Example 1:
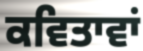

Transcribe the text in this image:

ਕਵਿਤਾਵਾਂ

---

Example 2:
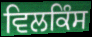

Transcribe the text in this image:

ਵਿਲਕਿੰਸ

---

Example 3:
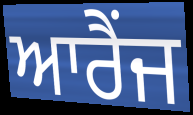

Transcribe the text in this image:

ਆਰੈਂਜ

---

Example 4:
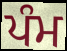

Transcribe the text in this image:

ਪੰਮ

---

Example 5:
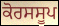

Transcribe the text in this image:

ਕੋਰਸਸੂਪ